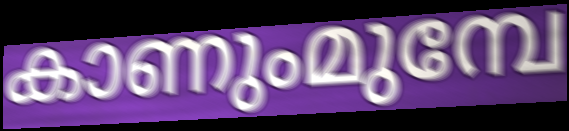
കാണുംമുമ്പേ